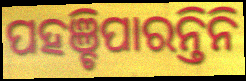
ପହଞ୍ଚିପାରନ୍ତିନି